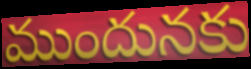
ముందునకు